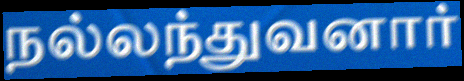
நல்லந்துவனார்